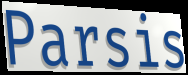
Parsis